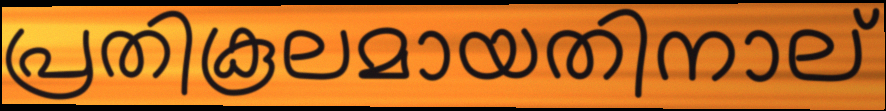
പ്രതികൂലമായതിനാല്